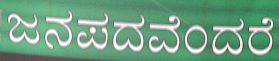
ಜನಪದವೆಂದರೆ